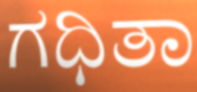
ಗಧಿತಾ